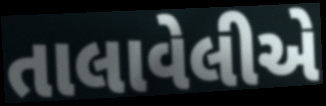
તાલાવેલીએ